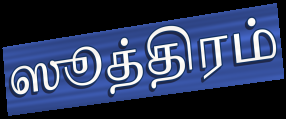
ஸூத்திரம்